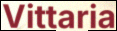
Vittaria